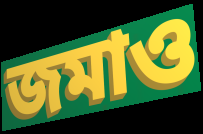
জমাও